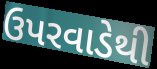
ઉપરવાડેથી